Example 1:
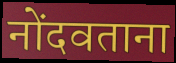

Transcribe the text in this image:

नोंदवताना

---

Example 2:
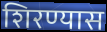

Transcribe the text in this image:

शिरण्यास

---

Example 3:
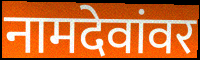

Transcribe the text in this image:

नामदेवांवर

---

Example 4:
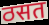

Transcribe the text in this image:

ठसत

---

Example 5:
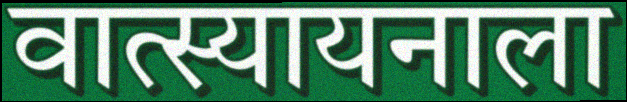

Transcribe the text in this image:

वात्स्यायनाला